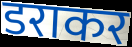
डराकर